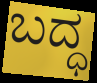
ಬದ್ಧ